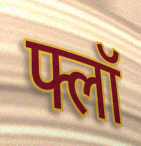
फ्लॉ